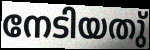
നേടിയതു്